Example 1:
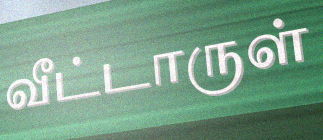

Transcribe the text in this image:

வீட்டாருள்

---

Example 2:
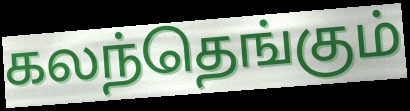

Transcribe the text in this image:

கலந்தெங்கும்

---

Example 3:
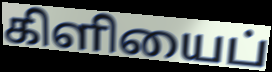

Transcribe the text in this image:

கிளியைப்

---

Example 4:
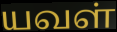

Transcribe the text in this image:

யவள்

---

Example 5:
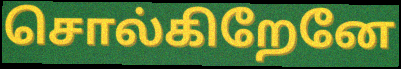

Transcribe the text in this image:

சொல்கிறேனே